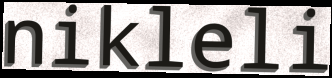
nikleli